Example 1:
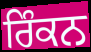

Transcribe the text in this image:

ਰਿੰਕਨ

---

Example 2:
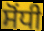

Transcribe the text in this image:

ਸੋਂਧੀ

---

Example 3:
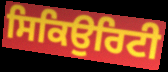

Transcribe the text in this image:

ਸਿਕਿਉਰਿਟੀ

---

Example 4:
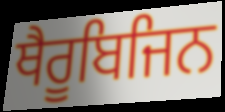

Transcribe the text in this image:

ਥੈਰੂਬਿਜਿਨ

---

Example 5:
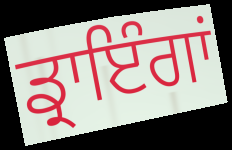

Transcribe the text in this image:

ਡ੍ਰਾਇੰਗਾਂ